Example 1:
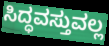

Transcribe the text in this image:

ಸಿದ್ಧವಸ್ತುವಲ್ಲ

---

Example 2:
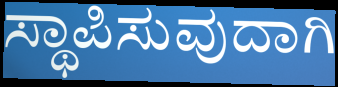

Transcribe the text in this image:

ಸ್ಥಾಪಿಸುವುದಾಗಿ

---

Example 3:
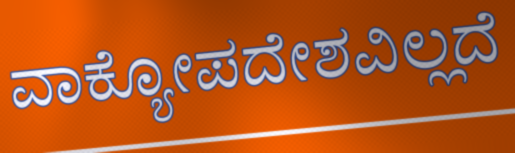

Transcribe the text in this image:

ವಾಕ್ಯೋಪದೇಶವಿಲ್ಲದೆ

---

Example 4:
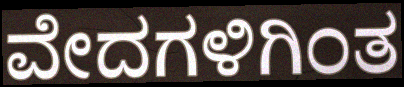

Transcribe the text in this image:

ವೇದಗಳಿಗಿಂತ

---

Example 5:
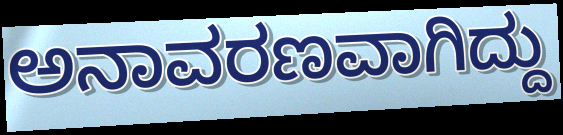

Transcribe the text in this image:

ಅನಾವರಣವಾಗಿದ್ದು